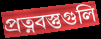
প্রত্নবস্তুগুলি